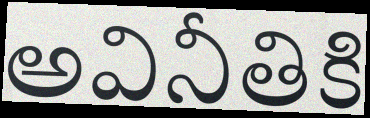
అవినీతికి